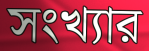
সংখ্যার